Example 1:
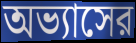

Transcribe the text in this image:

অভ্যাসের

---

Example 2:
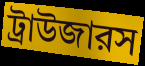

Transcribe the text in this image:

ট্রাউজারস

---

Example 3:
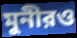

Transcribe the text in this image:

মুনীরও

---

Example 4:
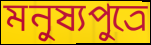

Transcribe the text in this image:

মনুষ্যপুত্রে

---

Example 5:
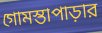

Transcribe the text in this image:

গোমস্তাপাড়ার